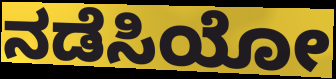
ನಡೆಸಿಯೋ